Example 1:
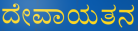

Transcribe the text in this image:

ದೇವಾಯತನ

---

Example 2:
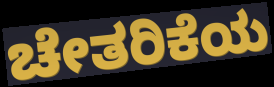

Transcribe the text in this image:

ಚೇತರಿಕೆಯ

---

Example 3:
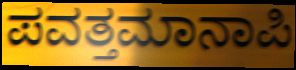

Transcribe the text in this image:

ಪವತ್ತಮಾನಾಪಿ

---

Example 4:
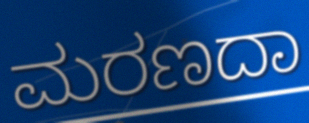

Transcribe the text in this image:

ಮರಣದಾ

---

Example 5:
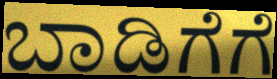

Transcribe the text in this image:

ಬಾಡಿಗೆಗೆ